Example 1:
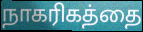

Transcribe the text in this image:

நாகரிகத்தை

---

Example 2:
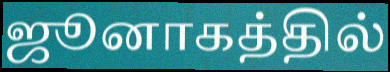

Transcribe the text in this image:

ஜூனாகத்தில்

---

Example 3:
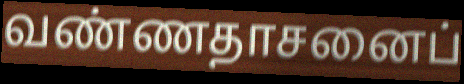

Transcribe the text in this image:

வண்ணதாசனைப்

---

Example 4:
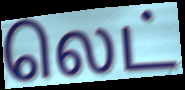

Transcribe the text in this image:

லெட்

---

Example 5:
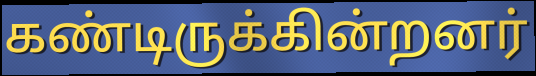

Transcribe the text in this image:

கண்டிருக்கின்றனர்